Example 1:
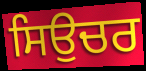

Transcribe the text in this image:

ਸਿਉਚਰ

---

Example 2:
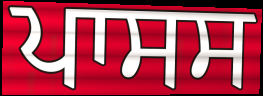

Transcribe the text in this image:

ਪਾਸਸ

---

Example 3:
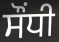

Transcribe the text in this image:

ਸੌਂਧੀ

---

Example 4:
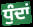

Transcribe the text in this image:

ਧੁੰਦਾਂ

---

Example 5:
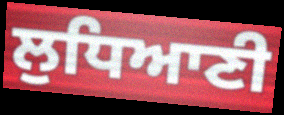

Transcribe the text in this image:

ਲੁਧਿਆਣੀ